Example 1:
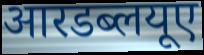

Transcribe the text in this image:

आरडब्लयूए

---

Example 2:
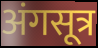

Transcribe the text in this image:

अंगसूत्र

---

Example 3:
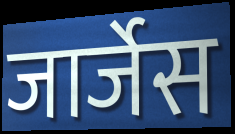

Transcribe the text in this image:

जार्जेस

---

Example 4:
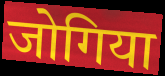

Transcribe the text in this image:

जोगिया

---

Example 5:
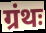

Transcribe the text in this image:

ग्रंथः